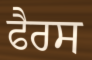
ਫੈਰਸ